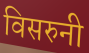
विसरुनी